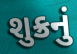
શુક્રનું